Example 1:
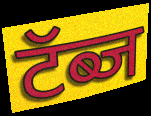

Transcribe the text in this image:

टॅब्ज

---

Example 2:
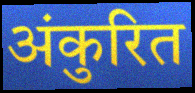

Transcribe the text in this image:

अंकुरित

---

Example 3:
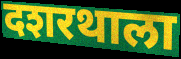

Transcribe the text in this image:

दशरथाला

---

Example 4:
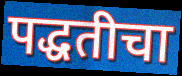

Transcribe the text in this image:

पद्धतीचा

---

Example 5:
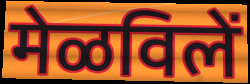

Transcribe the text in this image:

मेळविलें